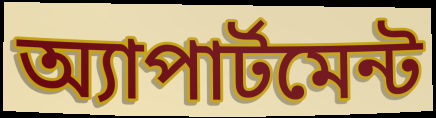
অ্যাপার্টমেন্ট